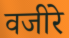
वजीरे